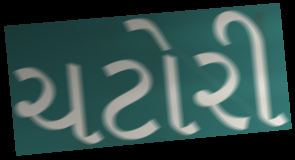
ચટોરી